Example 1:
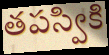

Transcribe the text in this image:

తపస్వికి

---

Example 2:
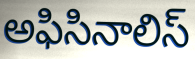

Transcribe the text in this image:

అఫిసినాలిస్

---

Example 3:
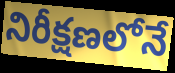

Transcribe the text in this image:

నిరీక్షణలోనే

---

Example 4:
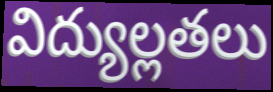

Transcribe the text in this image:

విద్యుల్లతలు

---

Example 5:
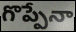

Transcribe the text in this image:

గొప్పేనా